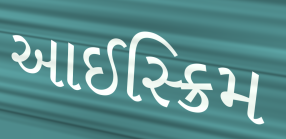
આઈસ્ક્રિમ